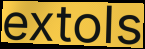
extols